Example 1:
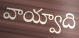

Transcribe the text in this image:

వాయ్వాది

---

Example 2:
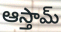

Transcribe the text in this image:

ఆస్తామ్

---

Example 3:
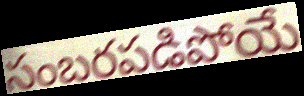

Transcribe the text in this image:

సంబరపడిపోయే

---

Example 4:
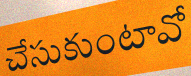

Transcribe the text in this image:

చేసుకుంటావో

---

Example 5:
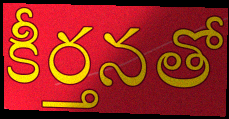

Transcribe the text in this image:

కీర్తనతో